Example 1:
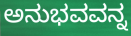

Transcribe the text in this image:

ಅನುಭವವನ್ನ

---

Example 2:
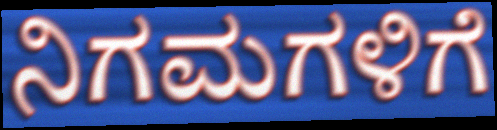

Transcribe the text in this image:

ನಿಗಮಗಳಿಗೆ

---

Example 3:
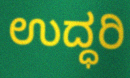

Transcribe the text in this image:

ಉದ್ಧರಿ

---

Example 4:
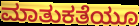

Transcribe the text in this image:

ಮಾತುಕತೆಯೂ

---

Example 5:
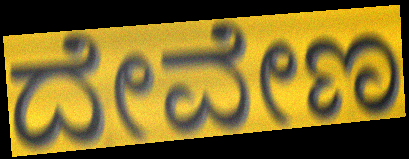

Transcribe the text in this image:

ದೇವೇಣ